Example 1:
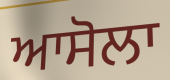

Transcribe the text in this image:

ਆਸੋਲਾ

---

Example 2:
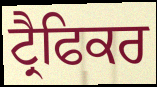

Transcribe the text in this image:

ਟ੍ਰੈਫਿਕਰ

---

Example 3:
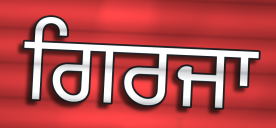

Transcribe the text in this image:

ਗਿਰਜਾ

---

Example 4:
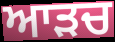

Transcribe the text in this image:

ਆੜਚ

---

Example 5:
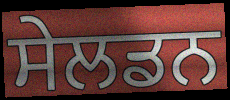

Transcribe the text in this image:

ਸੇਲਡਨ